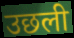
उछली